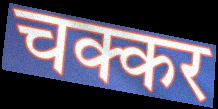
चक्कर